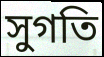
সুগতি